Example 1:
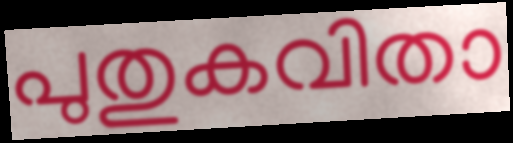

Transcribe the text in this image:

പുതുകവിതാ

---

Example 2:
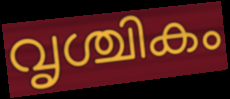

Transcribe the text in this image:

വൃശ്ചികം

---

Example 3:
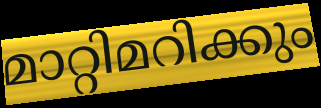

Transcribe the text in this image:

മാറ്റിമറിക്കും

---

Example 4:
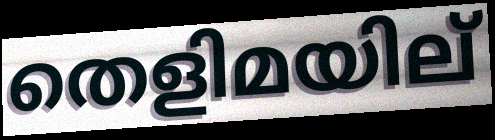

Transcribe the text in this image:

തെളിമയില്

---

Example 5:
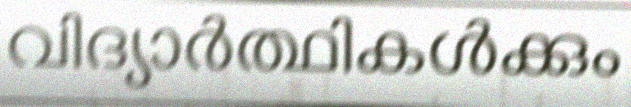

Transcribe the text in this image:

വിദ്യാർത്ഥികൾക്കും